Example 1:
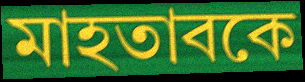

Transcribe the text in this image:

মাহতাবকে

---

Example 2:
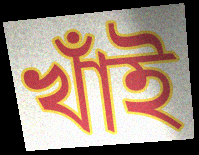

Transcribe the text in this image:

খাঁই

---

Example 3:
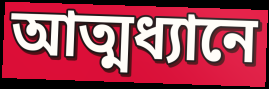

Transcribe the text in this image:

আত্মধ্যানে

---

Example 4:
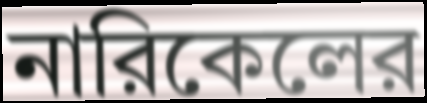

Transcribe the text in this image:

নারিকেলের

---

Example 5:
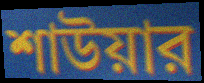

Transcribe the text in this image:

শাউয়ার